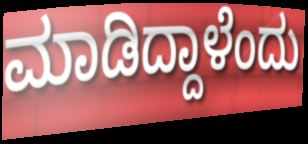
ಮಾಡಿದ್ದಾಳೆಂದು